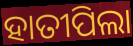
ହାତୀପିଲା